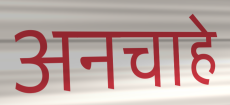
अनचाहे